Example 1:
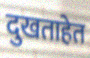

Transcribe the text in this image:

दुखताहेत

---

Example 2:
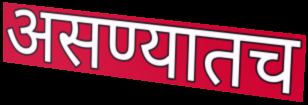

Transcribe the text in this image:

असण्यातच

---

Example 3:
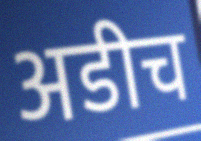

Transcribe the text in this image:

अडीच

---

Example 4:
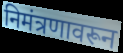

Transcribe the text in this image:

निमंत्रणावरून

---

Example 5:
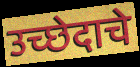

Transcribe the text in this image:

उच्छेदाचे